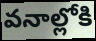
వనాల్లోకి